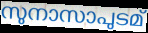
സുനാസാപുടമ്